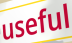
useful